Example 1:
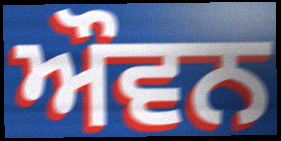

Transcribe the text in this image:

ਔਵਨ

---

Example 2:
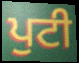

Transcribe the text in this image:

ਪੁਟੀ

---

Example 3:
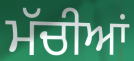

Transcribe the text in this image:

ਮੱਚੀਆਂ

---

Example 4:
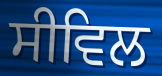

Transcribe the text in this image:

ਸੀਵਿਲ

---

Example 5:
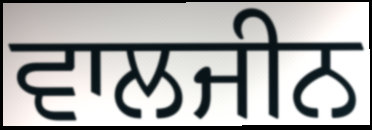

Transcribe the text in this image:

ਵਾਲਜੀਨ